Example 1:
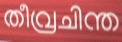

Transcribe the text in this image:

തീവ്രചിന്ത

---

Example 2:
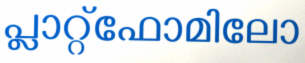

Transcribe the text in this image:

പ്ലാറ്റ്ഫോമിലോ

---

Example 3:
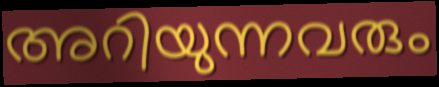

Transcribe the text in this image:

അറിയുന്നവരും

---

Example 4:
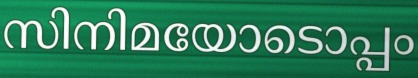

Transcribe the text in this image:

സിനിമയോടൊപ്പം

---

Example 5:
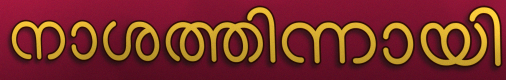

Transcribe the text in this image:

നാശത്തിന്നായി